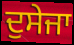
ਦੁਸੇਜਾ